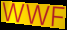
WWF